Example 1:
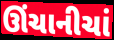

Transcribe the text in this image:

ઊંચાનીચાં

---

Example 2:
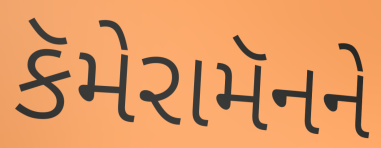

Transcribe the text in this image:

કૅમેરામૅનને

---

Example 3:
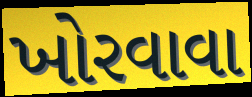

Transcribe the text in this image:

ખોરવાવા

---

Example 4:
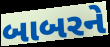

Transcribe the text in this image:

બાબરને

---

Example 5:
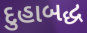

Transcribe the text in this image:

દુહાબદ્ધ